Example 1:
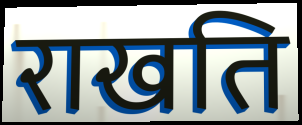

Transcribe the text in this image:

राखति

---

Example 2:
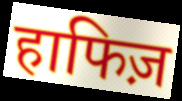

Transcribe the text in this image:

हाफिज़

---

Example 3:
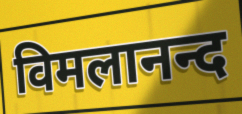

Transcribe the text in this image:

विमलानन्द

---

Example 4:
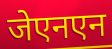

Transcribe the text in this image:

जेएनएन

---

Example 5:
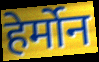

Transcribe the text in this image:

हेर्मोन